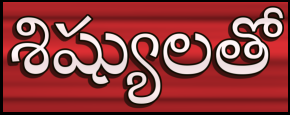
శిష్యులతో